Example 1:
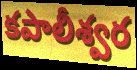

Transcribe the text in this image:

కపాలీశ్వర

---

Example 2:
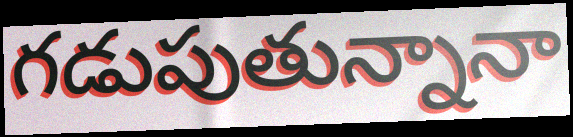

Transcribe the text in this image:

గడుపుతున్నానా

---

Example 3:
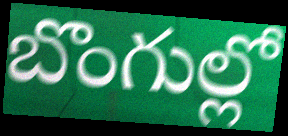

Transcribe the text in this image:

బొంగుల్లో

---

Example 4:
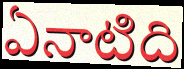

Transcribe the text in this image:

ఏనాటిది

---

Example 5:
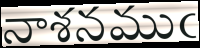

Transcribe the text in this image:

నాశనముఁ